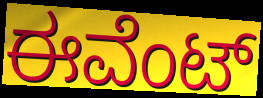
ಈವೆಂಟ್